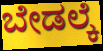
ಬೇಡಲ್ಕೆ